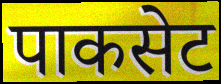
पाकसेट